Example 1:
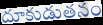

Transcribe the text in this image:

దూకుడుతనం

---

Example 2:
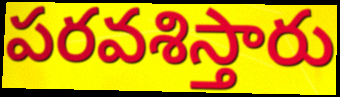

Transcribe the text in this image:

పరవశిస్తారు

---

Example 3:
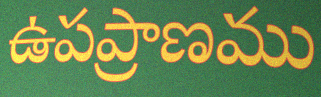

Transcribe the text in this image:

ఉపప్రాణము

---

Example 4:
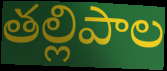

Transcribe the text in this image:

తల్లిపాల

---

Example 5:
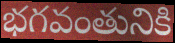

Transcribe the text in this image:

భగవంతునికి